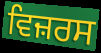
ਵਿਜ਼ਰਸ